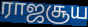
ராஜசூய